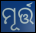
ମୂର୍ତ୍ତ